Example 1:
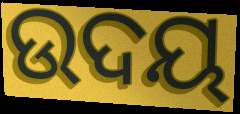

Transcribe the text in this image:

ଉଦୟ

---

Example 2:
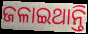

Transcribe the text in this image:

ଜଳାଇଥାନ୍ତି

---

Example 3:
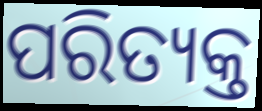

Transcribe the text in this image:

ପରିତ୍ୟକ୍ତ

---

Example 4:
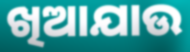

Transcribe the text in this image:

ଖିଆଯାଉ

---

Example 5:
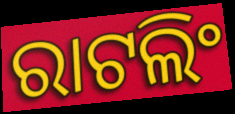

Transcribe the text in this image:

ରାଟଲିଂ